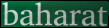
baharat